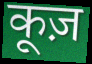
कूज़